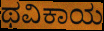
ಥವಿಕಾಯ